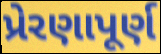
પ્રેરણાપૂર્ણ